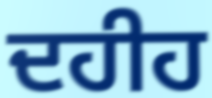
ਦਹੀਹ